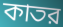
কাতর